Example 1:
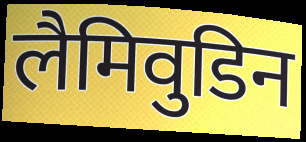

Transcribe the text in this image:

लैमिवुडिन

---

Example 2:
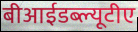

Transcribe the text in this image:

बीआईडब्ल्यूटीए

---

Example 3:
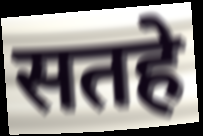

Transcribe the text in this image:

सतहे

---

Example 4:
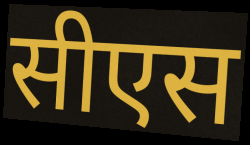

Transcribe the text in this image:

सीएस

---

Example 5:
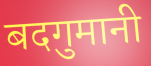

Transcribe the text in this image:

बदगुमानी